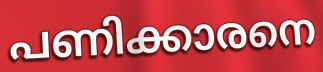
പണിക്കാരനെ